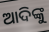
ଆଦିଙ୍କୁ